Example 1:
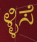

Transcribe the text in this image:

ಳ್ಳಿಸೆ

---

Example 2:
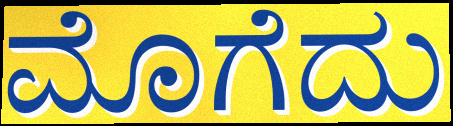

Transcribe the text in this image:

ಮೊಗೆದು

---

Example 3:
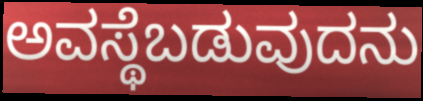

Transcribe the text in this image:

ಅವಸ್ಥೆಬಡುವುದನು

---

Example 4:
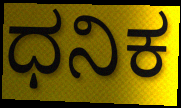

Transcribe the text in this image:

ಧನಿಕ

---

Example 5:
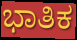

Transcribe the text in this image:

ಭಾತಿಕ